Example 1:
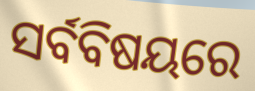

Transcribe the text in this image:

ସର୍ବବିଷୟରେ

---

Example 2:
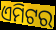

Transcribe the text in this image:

ଏମିଟର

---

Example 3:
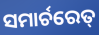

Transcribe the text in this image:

ସମାର୍ଚରେତ୍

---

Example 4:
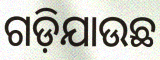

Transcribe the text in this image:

ଗଡ଼ିଯାଉଛ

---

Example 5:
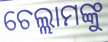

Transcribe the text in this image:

ଚେଲ୍ଲାମଙ୍କୁ